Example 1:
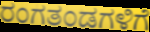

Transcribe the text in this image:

ರಂಗತಂಡಗಳಿಗೆ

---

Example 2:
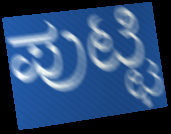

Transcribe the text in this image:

ಪುಟ್ಟಿ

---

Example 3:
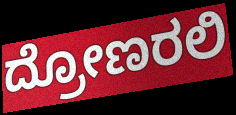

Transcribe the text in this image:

ದ್ರೋಣರಲಿ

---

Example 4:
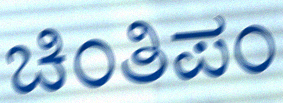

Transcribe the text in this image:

ಚಿಂತಿಪಂ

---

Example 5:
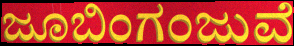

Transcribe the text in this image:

ಜೂಬಿಂಗಂಜುವೆ